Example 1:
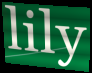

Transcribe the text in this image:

lily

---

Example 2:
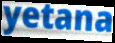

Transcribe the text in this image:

yetana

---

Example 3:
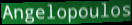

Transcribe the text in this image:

Angelopoulos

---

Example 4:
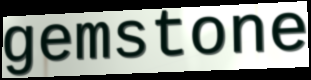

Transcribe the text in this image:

gemstone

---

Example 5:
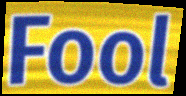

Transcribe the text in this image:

Fool